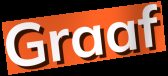
Graaf